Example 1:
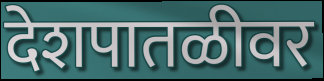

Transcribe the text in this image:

देशपातळीवर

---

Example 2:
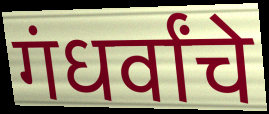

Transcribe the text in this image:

गंधर्वांचे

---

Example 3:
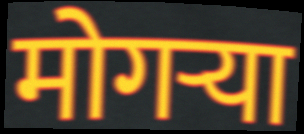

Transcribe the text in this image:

मोगऱ्या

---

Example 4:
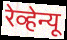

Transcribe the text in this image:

रेव्हेन्यू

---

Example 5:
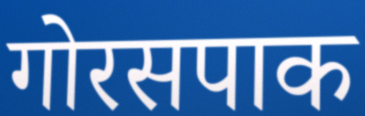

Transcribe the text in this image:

गोरसपाक